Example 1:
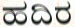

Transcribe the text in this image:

ಹದಿರ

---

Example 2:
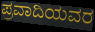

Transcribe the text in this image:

ಪ್ರವಾದಿಯವರ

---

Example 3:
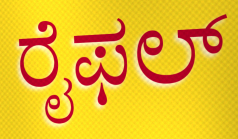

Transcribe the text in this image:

ರೈಫಲ್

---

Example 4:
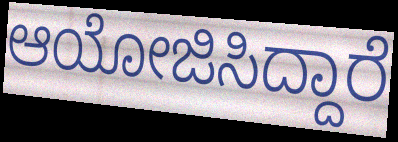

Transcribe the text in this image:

ಆಯೋಜಿಸಿದ್ದಾರೆ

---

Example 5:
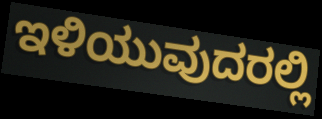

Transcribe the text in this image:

ಇಳಿಯುವುದರಲ್ಲಿ